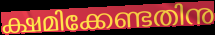
ക്ഷമിക്കേണ്ടതിനു